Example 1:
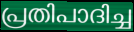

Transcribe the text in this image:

പ്രതിപാദിച്ച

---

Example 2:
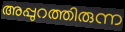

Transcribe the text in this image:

അപ്പുറത്തിരുന്ന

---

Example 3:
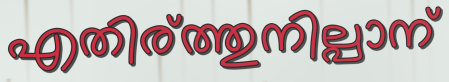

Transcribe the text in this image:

എതിര്ത്തുനില്പാന്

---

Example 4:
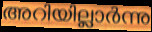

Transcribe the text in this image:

അറിയില്ലാർന്നു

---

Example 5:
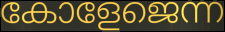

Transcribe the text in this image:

കോളേജെന്ന